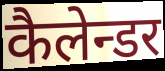
कैलेन्डर